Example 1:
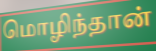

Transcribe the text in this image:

மொழிந்தான்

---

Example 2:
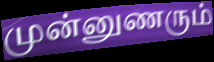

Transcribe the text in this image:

முன்னுணரும்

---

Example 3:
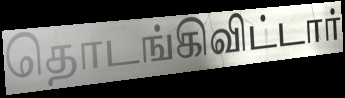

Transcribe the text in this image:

தொடங்கிவிட்டார்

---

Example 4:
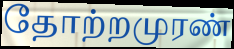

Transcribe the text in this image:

தோற்றமுரண்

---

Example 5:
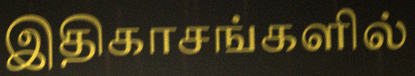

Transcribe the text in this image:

இதிகாசங்களில்